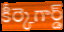
కీర్కెగార్డ్